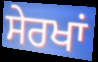
ਸੇਰਖਾਂ